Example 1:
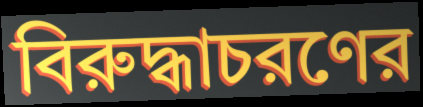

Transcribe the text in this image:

বিরুদ্ধাচরণের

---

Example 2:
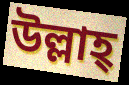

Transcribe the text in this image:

উল্লাহ্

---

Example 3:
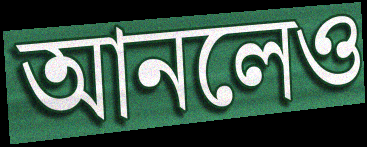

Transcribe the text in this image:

আনলেও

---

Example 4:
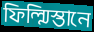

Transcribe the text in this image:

ফিল্মিস্তানে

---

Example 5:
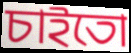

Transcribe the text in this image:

চাইতো